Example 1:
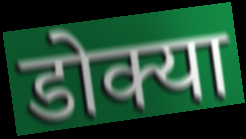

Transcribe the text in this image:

डोक्या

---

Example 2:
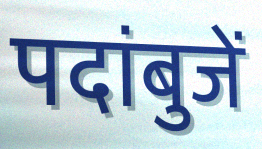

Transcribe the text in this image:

पदांबुजें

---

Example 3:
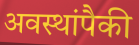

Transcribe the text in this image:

अवस्थांपैकी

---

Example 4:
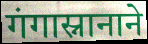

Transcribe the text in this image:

गंगास्नानाने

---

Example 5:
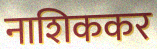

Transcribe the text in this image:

नाशिककर